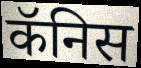
कॅनिस